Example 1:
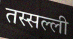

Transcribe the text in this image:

तस्सल्ली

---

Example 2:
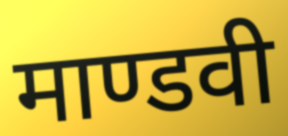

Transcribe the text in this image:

माण्डवी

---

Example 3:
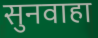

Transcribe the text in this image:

सुनवाहा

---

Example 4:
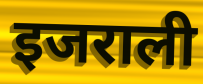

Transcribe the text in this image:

इजराली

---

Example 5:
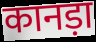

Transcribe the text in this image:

कानड़ा